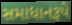
સમાધાનરૂપે